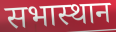
सभास्थान